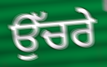
ਉੱਚਰੇ